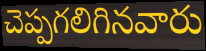
చెప్పగలిగినవారు